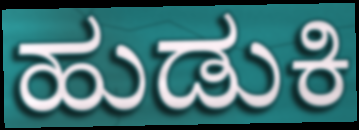
ಹುಡುಕಿ